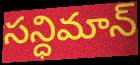
సన్ధిమాన్